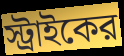
স্ট্রাইকের